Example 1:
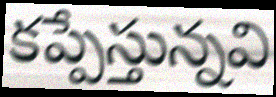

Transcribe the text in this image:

కప్పేస్తున్నవి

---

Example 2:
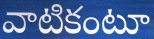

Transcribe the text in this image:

వాటికంటూ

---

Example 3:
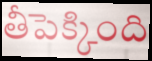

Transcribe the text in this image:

తీపెక్కింది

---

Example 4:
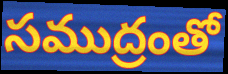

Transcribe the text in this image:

సముద్రంతో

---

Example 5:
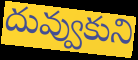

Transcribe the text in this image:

దువ్వుకుని